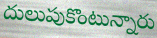
దులుపుకొంటున్నారు